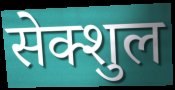
सेक्शुल